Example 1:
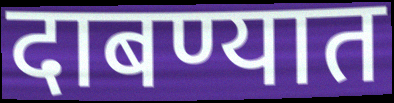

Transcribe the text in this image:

दाबण्यात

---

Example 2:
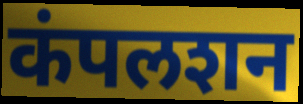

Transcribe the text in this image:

कंपलशन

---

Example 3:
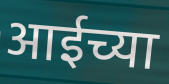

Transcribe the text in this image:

आईच्या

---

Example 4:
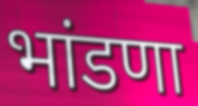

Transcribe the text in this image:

भांडणा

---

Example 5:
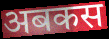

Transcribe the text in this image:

अबकस